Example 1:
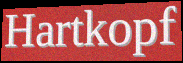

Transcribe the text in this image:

Hartkopf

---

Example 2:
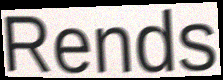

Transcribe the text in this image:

Rends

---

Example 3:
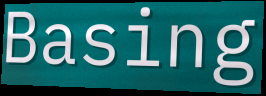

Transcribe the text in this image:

Basing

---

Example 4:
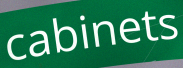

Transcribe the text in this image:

cabinets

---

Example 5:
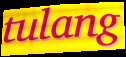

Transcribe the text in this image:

tulang